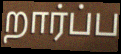
றார்ப்ப